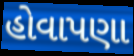
હોવાપણા